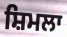
ਸ਼ਿਮਲਾ